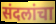
संदलांचा